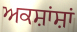
ਅਕਸ਼ਾਂਸ਼ਾਂ